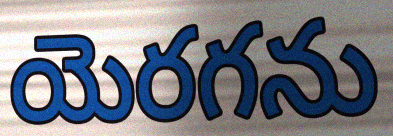
యెరగను